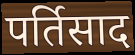
पर्तिसाद